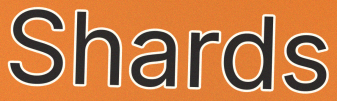
Shards